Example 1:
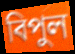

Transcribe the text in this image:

বিপুল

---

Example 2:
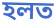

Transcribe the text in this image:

হলত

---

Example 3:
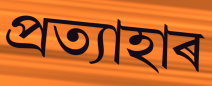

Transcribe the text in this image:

প্ৰত্যাহাৰ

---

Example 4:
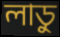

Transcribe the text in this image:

লাডু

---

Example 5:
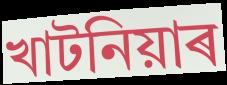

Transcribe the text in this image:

খাটনিয়াৰ